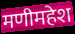
मणीमहेश